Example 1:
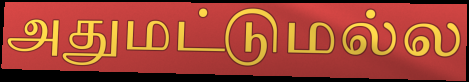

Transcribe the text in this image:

அதுமட்டுமல்ல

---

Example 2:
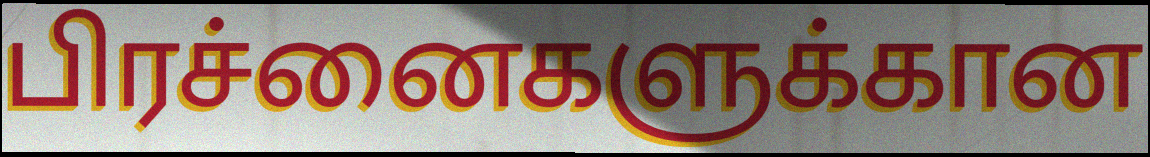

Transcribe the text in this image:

பிரச்னைகளுக்கான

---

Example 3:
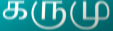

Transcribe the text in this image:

கருமு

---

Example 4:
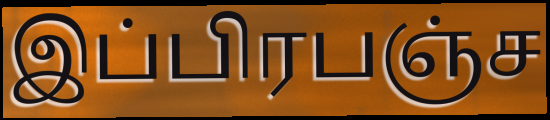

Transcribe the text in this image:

இப்பிரபஞ்ச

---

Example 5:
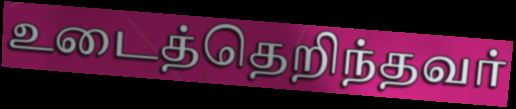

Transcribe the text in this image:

உடைத்தெறிந்தவர்